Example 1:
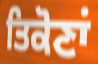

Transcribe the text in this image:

ਤਿਕੋਣਾਂ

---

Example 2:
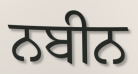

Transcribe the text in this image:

ਨਬੀਨ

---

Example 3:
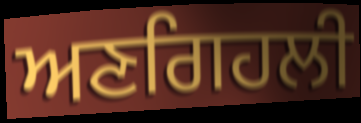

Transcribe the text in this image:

ਅਣਗਿਹਲੀ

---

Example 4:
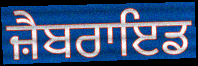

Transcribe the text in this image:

ਜ਼ੈਬਰਾਇਡ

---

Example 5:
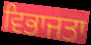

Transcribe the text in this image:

ਵਿਭਾਜਤਾ